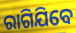
ରାଗିଯିବେ